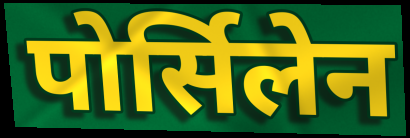
पोर्सिलेन